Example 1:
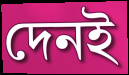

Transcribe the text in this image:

দেনই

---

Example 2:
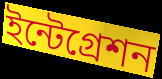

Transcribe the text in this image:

ইন্টেগ্রেশন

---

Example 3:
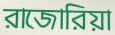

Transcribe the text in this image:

রাজোরিয়া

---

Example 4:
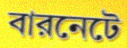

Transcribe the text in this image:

বারনেটে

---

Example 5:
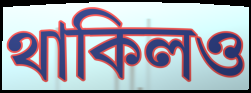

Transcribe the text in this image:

থাকিলও